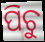
ପିଚୁ